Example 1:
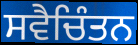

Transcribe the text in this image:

ਸਵੈਚਿੰਤਨ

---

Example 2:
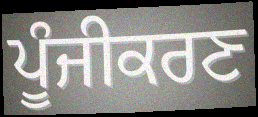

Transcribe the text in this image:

ਪੂੰਜੀਕਰਣ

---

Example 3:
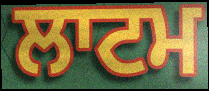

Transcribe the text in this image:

ਲਾਟਮ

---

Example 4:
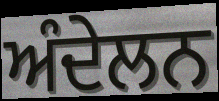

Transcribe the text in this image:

ਅੰਦੇਲਨ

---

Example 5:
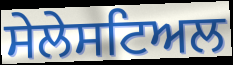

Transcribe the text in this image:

ਸੇਲੇਸਟਿਅਲ